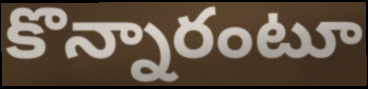
కొన్నారంటూ